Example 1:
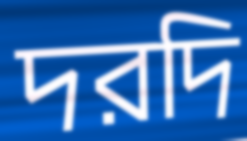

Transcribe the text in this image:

দরদি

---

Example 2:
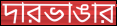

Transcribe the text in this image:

দারভাঙার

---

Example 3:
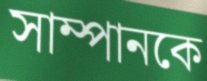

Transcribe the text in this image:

সাম্পানকে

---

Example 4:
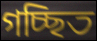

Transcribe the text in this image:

গচ্ছিত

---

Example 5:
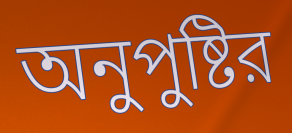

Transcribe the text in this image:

অনুপুষ্টির